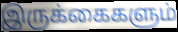
இருக்கைகளும்